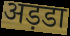
अड़डा